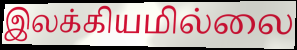
இலக்கியமில்லை